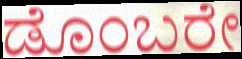
ಡೊಂಬರೇ